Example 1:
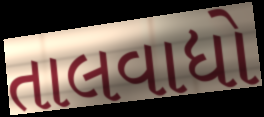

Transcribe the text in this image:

તાલવાદ્યો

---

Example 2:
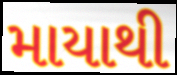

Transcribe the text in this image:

માયાથી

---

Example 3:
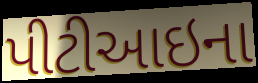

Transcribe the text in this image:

પીટીઆઇના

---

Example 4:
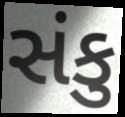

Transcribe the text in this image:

સંકુ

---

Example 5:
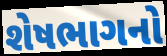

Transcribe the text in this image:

શેષભાગનો